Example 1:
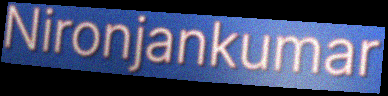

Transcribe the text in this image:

Nironjankumar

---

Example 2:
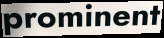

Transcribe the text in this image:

prominent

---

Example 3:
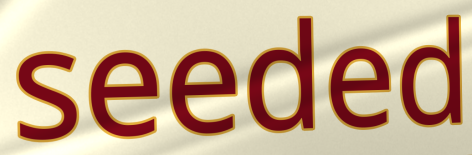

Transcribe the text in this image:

seeded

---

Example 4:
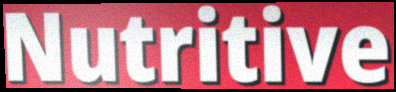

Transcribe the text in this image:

Nutritive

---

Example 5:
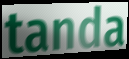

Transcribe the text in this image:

tanda